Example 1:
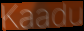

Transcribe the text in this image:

Kaadu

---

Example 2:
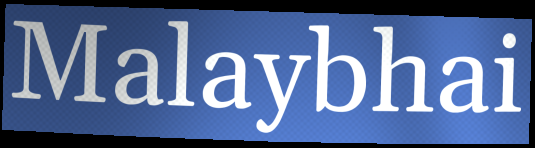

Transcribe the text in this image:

Malaybhai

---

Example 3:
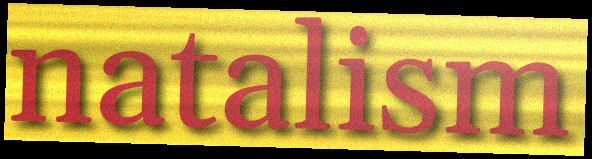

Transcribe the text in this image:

natalism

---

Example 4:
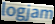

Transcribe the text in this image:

logjam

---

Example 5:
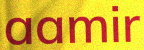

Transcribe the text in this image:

aamir